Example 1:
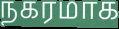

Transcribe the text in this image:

நகரமாக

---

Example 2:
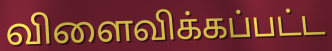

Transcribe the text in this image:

விளைவிக்கப்பட்ட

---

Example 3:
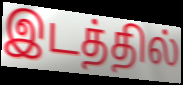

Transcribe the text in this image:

இடத்தில்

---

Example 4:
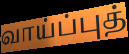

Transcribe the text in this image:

வாய்ப்புத்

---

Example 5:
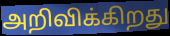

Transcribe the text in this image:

அறிவிக்கிறது